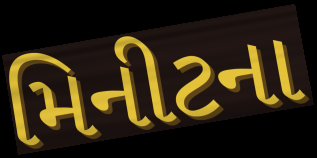
મિનીટના